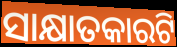
ସାକ୍ଷାତକାରଟି